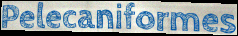
Pelecaniformes